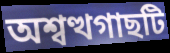
অশ্বত্থগাছটি